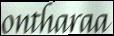
ontharaa